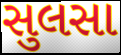
સુલસા